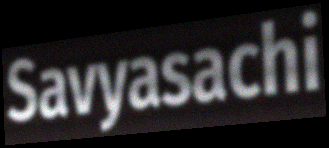
Savyasachi